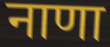
नाणा